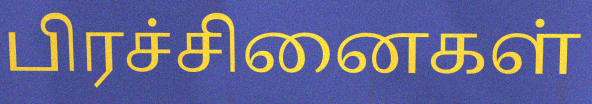
பிரச்சினைகள்